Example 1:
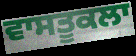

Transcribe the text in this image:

ਵਾਸਤੂਕਲਾ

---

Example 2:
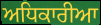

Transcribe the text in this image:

ਅਧਿਕਾਰੀਆ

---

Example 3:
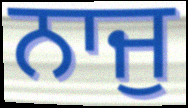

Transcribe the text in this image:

ਨਾਜੁ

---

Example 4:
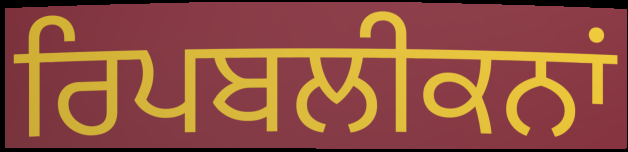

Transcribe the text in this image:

ਰਿਪਬਲੀਕਨਾਂ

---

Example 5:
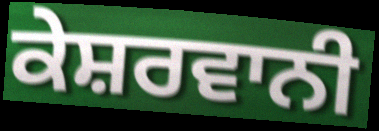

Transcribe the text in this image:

ਕੇਸ਼ਰਵਾਨੀ